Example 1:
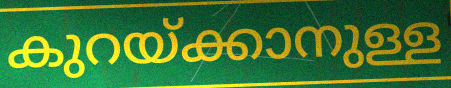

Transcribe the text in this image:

കുറയ്ക്കാനുള്ള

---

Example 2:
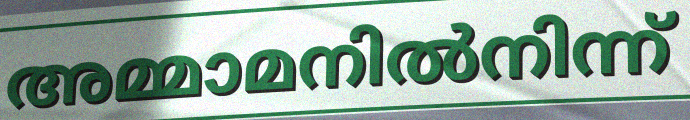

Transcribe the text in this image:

അമ്മാമനിൽനിന്ന്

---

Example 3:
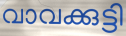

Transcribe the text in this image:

വാവക്കുട്ടി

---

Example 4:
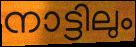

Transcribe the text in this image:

നാട്ടിലും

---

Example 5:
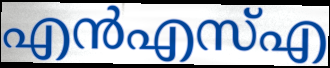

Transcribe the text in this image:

എൻഎസ്എ